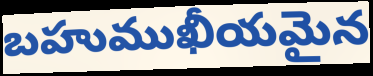
బహుముఖీయమైన